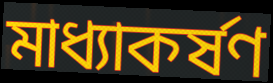
মাধ্যাকর্ষণ